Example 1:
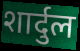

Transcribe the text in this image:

शार्दुल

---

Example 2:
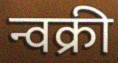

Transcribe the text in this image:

न्वक्री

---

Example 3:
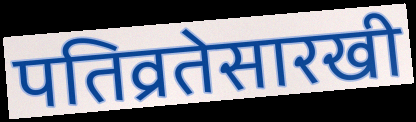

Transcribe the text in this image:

पतिव्रतेसारखी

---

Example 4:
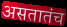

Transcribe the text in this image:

असतातंच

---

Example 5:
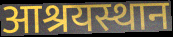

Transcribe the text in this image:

आश्रयस्थान